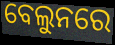
ବେଲୁନରେ